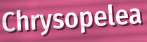
Chrysopelea